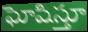
ఘోషిస్తూ